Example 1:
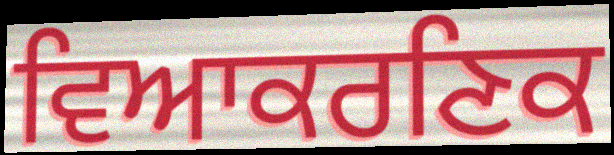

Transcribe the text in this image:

ਵਿਆਕਰਣਿਕ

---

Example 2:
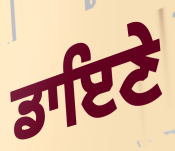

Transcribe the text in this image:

ਡਾਇਣੇ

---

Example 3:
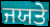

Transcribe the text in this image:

ਜਯਤੇ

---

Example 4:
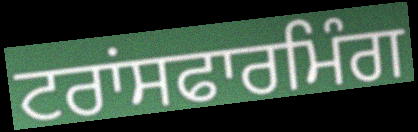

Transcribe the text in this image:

ਟਰਾਂਸਫਾਰਮਿੰਗ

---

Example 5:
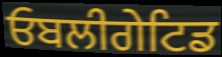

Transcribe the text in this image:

ਓਬਲੀਗੇਟਿਡ